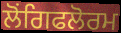
ਲੋਂਗਿਫਲੋਰਮ